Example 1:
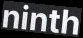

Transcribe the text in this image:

ninth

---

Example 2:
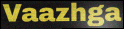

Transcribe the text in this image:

Vaazhga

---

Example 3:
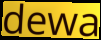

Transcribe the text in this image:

dewa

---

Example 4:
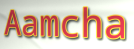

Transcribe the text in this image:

Aamcha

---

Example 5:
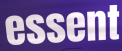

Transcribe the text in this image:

essent